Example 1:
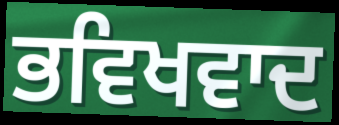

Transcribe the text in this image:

ਭਵਿਖਵਾਦ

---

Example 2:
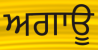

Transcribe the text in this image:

ਅਗਾਊ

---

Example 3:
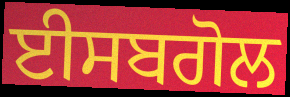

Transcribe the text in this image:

ਈਸਬਗੋਲ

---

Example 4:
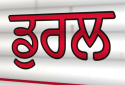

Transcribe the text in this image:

ਡੁਰਲ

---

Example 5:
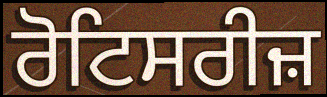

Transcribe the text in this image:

ਰੋਟਿਸਰੀਜ਼